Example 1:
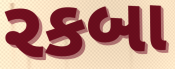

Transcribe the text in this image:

રકબા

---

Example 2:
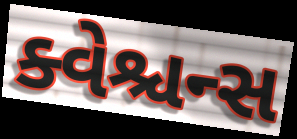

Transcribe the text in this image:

ક્વેશ્ચન્સ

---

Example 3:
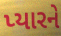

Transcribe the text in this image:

પ્યારને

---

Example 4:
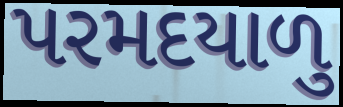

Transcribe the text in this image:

પરમદયાળુ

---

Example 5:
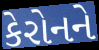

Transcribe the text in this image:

કેરોનને